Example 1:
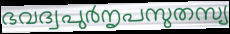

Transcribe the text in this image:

ഭവദ്വപുർനൃപസുതസ്യ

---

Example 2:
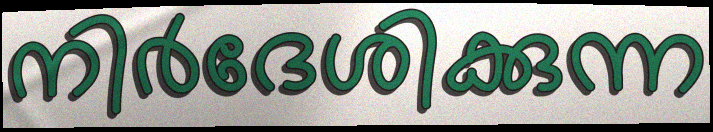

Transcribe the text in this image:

നിർദേശിക്കുന്ന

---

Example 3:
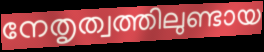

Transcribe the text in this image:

നേതൃത്വത്തിലുണ്ടായ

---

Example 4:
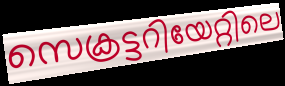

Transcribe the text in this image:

സെക്രട്ടറിയേറ്റിലെ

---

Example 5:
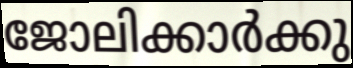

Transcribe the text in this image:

ജോലിക്കാർക്കു